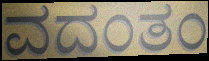
ವದಂತಂ